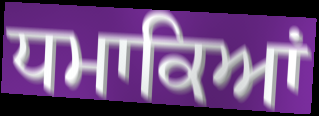
ਧਮਾਕਿਆਂ